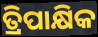
ତ୍ରିପାକ୍ଷିକ